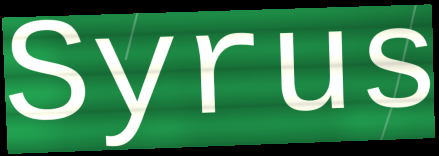
Syrus